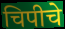
चिपीचे